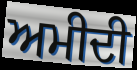
ਅਮੀਦੀ